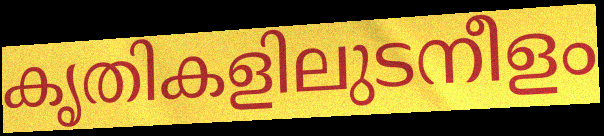
കൃതികളിലുടനീളം